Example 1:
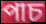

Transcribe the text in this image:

পাচ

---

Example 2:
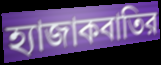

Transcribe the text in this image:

হ্যাজাকবাতির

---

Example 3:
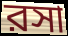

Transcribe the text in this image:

রসা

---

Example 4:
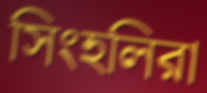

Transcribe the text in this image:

সিংহলিরা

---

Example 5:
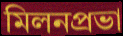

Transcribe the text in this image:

মিলনপ্রভা